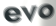
evo